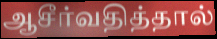
ஆசீர்வதித்தால்